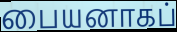
பையனாகப்